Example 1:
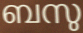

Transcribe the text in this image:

ബസു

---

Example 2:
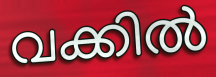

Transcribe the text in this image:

വക്കിൽ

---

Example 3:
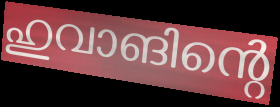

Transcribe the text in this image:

ഹുവാങിന്റെ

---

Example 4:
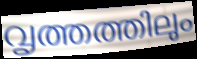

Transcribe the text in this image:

വൃത്തത്തിലും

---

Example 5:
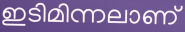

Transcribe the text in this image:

ഇടിമിന്നലാണ്